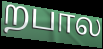
றபால